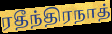
ரதீந்திரநாத்